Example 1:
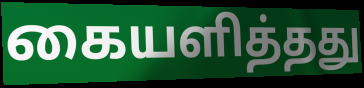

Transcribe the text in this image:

கையளித்தது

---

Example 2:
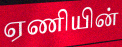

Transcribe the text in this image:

ஏணியின்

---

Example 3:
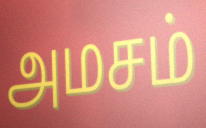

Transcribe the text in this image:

அமசம்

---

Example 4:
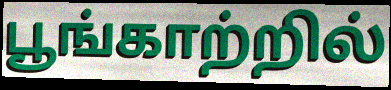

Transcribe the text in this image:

பூங்காற்றில்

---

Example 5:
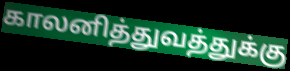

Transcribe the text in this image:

காலனித்துவத்துக்கு